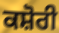
ਕਸ਼ੋਰੀ